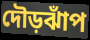
দৌড়ঝাঁপ